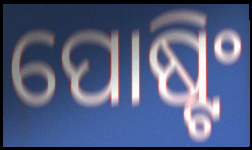
ପୋଷ୍ଟିଂ